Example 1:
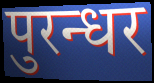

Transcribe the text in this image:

पुरन्धर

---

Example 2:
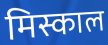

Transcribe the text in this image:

मिस्काल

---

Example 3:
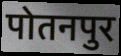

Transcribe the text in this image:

पोतनपुर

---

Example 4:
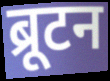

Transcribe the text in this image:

ब्रूटन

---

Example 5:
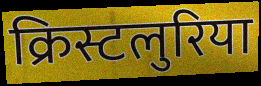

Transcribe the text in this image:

क्रिस्टलुरिया